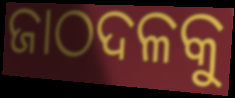
ଜାଠଦଳକୁ